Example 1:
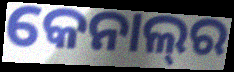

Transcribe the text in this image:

କେନାଲ୍‍ର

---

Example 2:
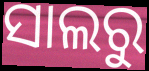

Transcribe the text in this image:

ସାଲରୁ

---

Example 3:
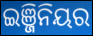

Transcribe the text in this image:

ଇଞ୍ଜିନିୟର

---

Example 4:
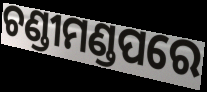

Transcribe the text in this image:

ଚଣ୍ଡୀମଣ୍ଡପରେ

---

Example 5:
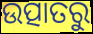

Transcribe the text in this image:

ଉତ୍ପାତରୁ